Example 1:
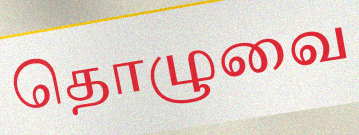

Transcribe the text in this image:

தொழுவை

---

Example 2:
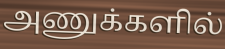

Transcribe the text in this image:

அணுக்களில்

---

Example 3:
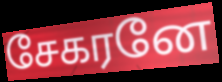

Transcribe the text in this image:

சேகரனே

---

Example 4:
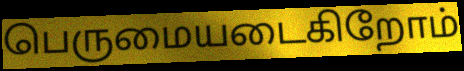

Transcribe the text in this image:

பெருமையடைகிறோம்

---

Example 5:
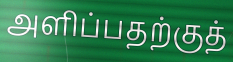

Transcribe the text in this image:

அளிப்பதற்குத்